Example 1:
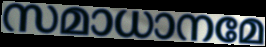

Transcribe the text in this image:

സമാധാനമേ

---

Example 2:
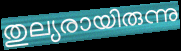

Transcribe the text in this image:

തുല്യരായിരുന്നു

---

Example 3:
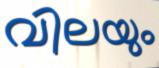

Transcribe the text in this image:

വിലയും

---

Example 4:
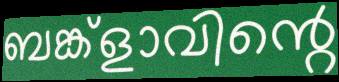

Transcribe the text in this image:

ബങ്ക്ളാവിന്റെ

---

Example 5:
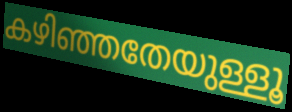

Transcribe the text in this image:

കഴിഞ്ഞതേയുള്ളൂ